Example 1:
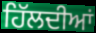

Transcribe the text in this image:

ਹਿੱਲਦੀਆਂ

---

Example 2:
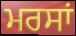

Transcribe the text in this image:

ਮਰਸਾਂ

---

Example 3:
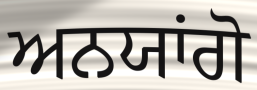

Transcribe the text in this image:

ਅਨਯਾਂਗੋ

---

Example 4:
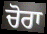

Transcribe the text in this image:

ਚੋਰਾ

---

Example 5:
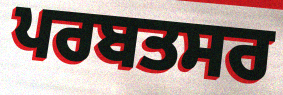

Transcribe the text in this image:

ਪਰਬਤਸਰ